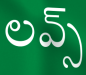
లవ్స్